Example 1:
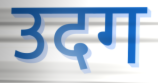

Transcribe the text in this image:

उदग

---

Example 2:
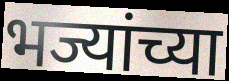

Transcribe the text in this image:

भज्यांच्या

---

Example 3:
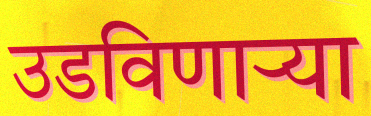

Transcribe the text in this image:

उडविणार्‍या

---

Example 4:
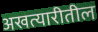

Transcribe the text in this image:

अखत्यारीतील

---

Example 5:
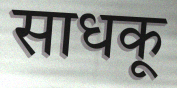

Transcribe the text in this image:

साधकू